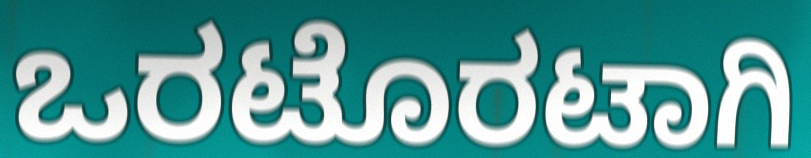
ಒರಟೊರಟಾಗಿ